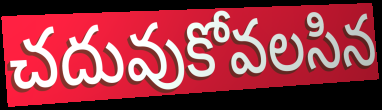
చదువుకోవలసిన